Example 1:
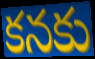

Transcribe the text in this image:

కనకు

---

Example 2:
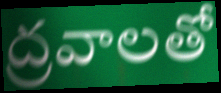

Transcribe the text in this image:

ద్రవాలతో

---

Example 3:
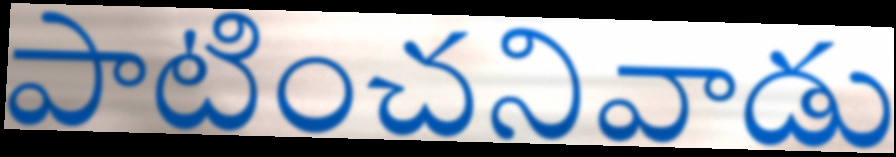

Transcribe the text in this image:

పాటించనివాడు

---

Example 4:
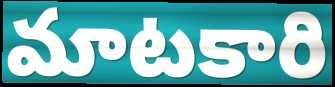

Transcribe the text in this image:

మాటకారి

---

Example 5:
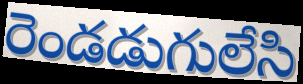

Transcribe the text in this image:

రెండడుగులేసి